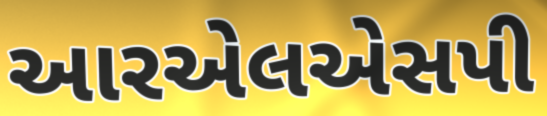
આરએલએસપી